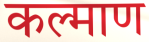
कल्माण